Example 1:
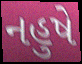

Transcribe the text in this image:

નહુષે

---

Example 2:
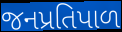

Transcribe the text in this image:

જનપ્રતિપાળ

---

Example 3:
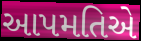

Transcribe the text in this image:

આપમતિએ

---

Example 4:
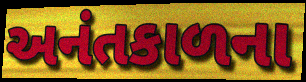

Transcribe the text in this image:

અનંતકાળના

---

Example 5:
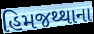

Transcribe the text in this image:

હિમજથ્થાના